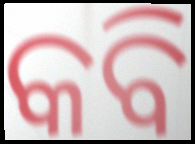
କବି